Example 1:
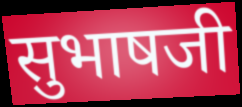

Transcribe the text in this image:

सुभाषजी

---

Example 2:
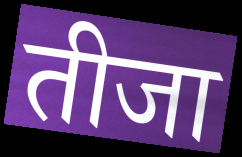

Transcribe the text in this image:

तीजा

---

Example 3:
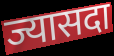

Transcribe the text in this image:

ज्यासदा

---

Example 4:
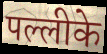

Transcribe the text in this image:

पल्लीके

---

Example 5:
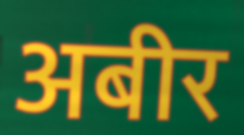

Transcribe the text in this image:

अबीर